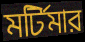
মর্টিমার